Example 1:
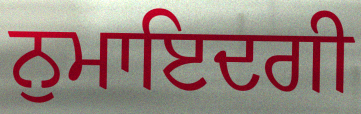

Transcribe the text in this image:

ਨੁਮਾਇਦਗੀ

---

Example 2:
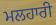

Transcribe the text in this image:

ਮਲਹਾਰੀ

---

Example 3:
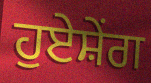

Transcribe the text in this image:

ਹੁਏਸ਼ੇਂਗ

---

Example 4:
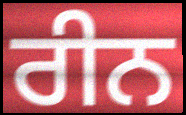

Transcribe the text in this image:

ਰੀਨ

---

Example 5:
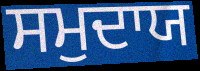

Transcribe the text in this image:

ਸਮੁਦਾਯ